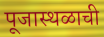
पूजास्थळाची